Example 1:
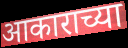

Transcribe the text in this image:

आकाराच्या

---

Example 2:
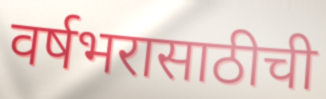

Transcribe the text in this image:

वर्षभरासाठीची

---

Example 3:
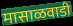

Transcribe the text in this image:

मासाळवाडी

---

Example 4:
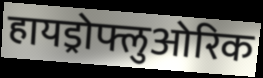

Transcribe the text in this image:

हायड्रोफ्लुओरिक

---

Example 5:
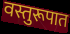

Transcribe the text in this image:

वस्तुरूपात